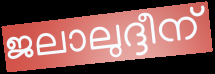
ജലാലുദ്ദീന്